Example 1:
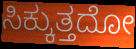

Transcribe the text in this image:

ಸಿಕ್ಕುತ್ತದೋ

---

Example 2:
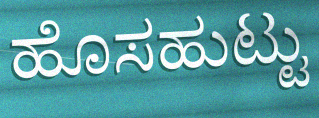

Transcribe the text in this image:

ಹೊಸಹುಟ್ಟು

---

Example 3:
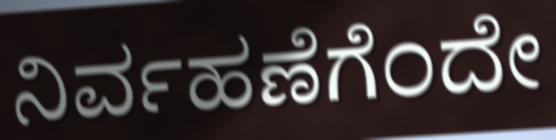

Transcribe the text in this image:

ನಿರ್ವಹಣೆಗೆಂದೇ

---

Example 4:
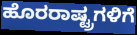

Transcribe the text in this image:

ಹೊರರಾಷ್ಟ್ರಗಳಿಗೆ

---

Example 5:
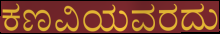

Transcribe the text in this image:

ಕಣವಿಯವರದು